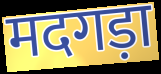
मदगड़ा